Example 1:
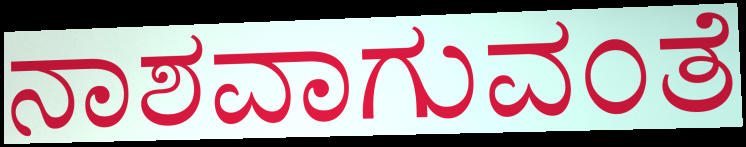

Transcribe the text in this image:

ನಾಶವಾಗುವಂತೆ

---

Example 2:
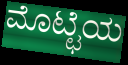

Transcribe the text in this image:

ಮೊಟ್ಟೆಯ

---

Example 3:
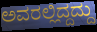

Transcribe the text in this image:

ಅವರಲ್ಲಿದ್ದದ್ದು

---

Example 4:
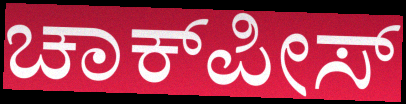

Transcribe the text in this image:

ಚಾಕ್‌ಪೀಸ್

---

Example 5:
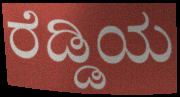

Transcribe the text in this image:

ರೆಡ್ಡಿಯ